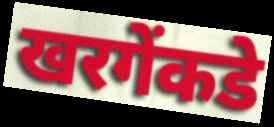
खरगेंकडे